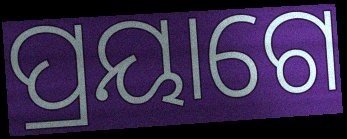
ପ୍ରୟାଗେ